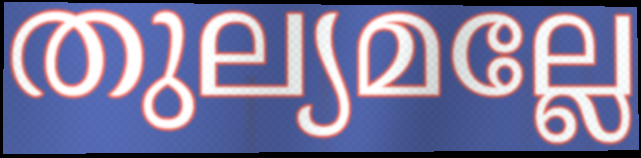
തുല്യമല്ലേ